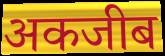
अकजीब